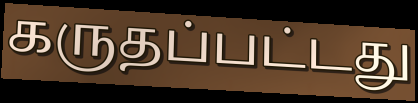
கருதப்பட்டது